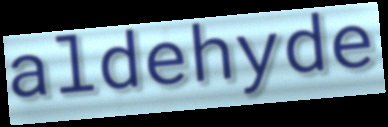
aldehyde